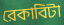
রেকাবিটা